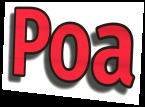
Poa